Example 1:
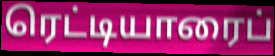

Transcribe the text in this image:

ரெட்டியாரைப்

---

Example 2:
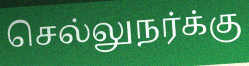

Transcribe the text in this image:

செல்லுநர்க்கு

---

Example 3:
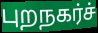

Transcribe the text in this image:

புறநகர்ச்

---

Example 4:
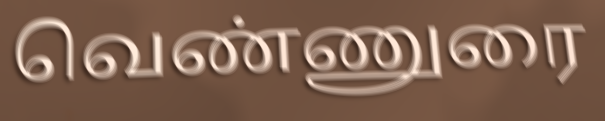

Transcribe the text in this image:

வெண்ணுரை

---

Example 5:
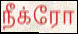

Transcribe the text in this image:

நீக்ரோ